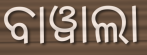
ବାୱାଲା